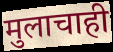
मुलाचाही